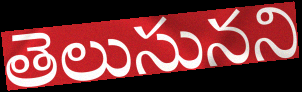
తెలుసునని